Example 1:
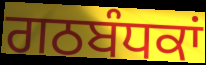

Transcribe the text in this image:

ਗਠਬੰਧਕਾਂ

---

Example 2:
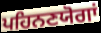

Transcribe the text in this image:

ਪਹਿਨਣਯੋਗਾਂ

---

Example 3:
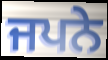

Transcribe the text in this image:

ਜਪਨੇ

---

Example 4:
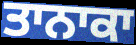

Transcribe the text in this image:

ਤਾਨਾਕਾ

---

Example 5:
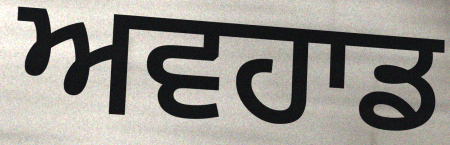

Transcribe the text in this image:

ਅਵਹਾਡ